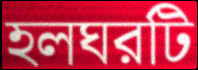
হলঘরটি